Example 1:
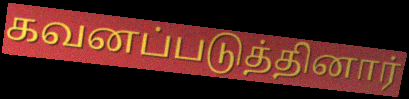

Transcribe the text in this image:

கவனப்படுத்தினார்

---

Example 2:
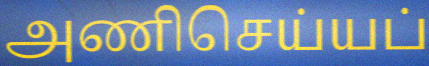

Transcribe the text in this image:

அணிசெய்யப்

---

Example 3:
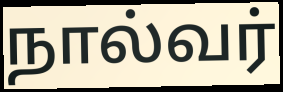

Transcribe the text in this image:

நால்வர்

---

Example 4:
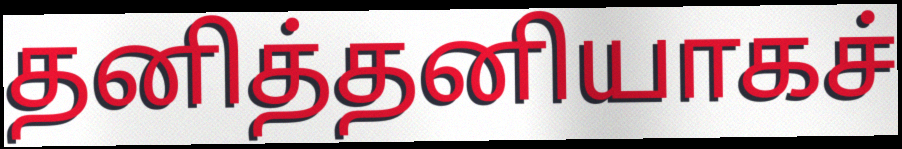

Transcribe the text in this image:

தனித்தனியாகச்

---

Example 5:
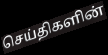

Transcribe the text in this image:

செய்திகளின்